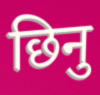
छिनु